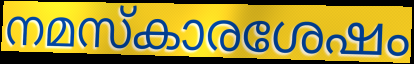
നമസ്കാരശേഷം